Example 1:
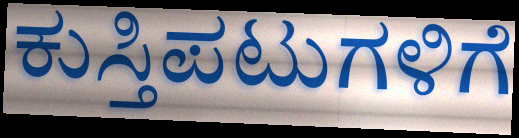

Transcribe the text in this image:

ಕುಸ್ತಿಪಟುಗಳಿಗೆ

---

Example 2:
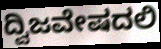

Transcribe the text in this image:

ದ್ವಿಜವೇಷದಲಿ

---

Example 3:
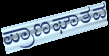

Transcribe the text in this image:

ಪ್ರಾಣಘಾತವ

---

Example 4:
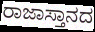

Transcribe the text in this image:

ರಾಜಾಸ್ತಾನದ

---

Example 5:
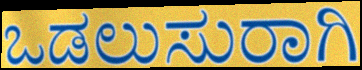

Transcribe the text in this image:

ಒಡಲುಸುರಾಗಿ